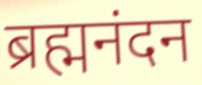
ब्रह्मनंदन